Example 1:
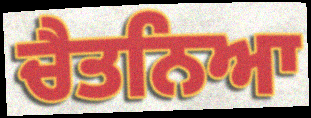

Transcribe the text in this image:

ਚੈਤਨਿਆ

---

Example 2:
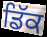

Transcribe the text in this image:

ਡਿੱਕ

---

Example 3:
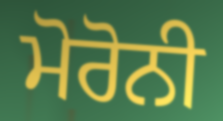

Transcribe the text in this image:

ਮੋਰੋਨੀ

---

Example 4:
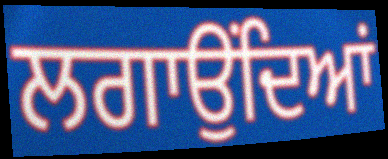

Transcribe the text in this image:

ਲਗਾਉੰਦਿਆਂ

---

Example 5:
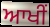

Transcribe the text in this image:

ਆਖੀਂ